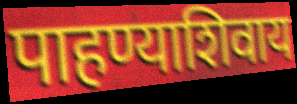
पाहण्याशिवाय